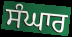
ਸੰਘਾਰ